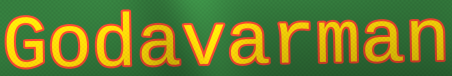
Godavarman